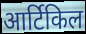
आर्टिकिल